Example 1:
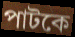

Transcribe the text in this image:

পাটকে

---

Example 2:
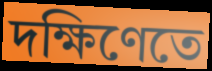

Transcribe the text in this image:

দক্ষিণেতে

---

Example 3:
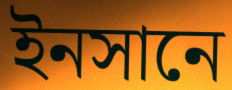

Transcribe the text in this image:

ইনসানে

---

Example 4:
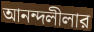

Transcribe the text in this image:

আনন্দলীলার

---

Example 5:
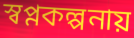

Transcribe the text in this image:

স্বপ্নকল্পনায়